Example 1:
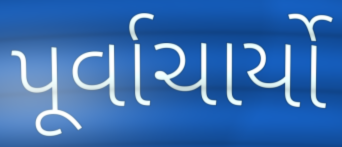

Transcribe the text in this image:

પૂર્વાચાર્યો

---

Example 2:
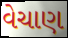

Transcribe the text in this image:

વેચાણ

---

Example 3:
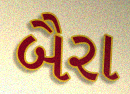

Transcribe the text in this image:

બૈરા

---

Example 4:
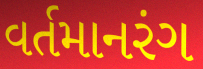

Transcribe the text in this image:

વર્તમાનરંગ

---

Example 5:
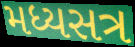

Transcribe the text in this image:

મધ્યસત્ર